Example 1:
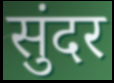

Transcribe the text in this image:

सुंदर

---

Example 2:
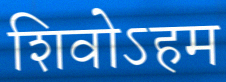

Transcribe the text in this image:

शिवोऽहम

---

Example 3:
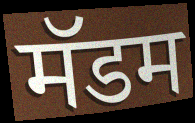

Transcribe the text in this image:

मॅडम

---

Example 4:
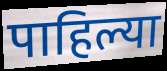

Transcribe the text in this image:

पाहिल्या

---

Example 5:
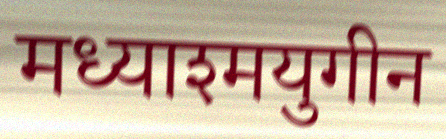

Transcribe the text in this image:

मध्याश्मयुगीन